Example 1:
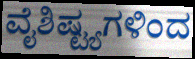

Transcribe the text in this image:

ವೈಶಿಷ್ಟ್ಯಗಳಿಂದ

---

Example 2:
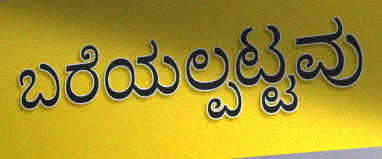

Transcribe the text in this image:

ಬರೆಯಲ್ಪಟ್ಟವು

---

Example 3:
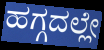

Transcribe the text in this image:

ಹಗ್ಗದಲ್ಲೇ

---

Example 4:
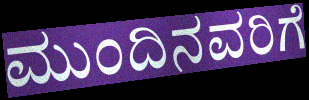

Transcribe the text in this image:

ಮುಂದಿನವರಿಗೆ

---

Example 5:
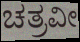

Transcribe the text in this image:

ಚತ್ರವೀ